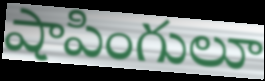
షాపింగులూ